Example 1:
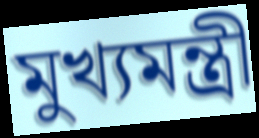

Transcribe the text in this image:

মুখ্যমন্ত্ৰী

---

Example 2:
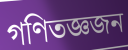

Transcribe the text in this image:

গণিতজ্ঞজন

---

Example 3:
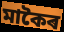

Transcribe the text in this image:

মাকৈৰ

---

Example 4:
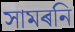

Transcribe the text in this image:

সামৰনি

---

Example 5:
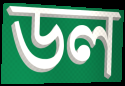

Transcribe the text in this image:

ডল